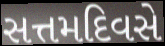
સત્તમદિવસે